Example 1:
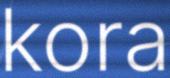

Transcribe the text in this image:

kora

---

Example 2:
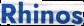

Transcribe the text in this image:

Rhinos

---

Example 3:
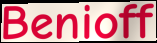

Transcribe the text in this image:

Benioff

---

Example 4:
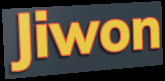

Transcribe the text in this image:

Jiwon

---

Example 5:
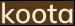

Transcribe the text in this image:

koota